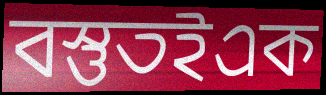
বস্তুতইএক